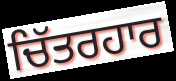
ਚਿੱਤਰਹਾਰ